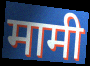
मामी